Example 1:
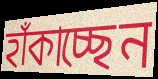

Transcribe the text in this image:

হাঁকাচ্ছেন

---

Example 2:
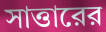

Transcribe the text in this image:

সাত্তারের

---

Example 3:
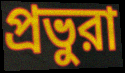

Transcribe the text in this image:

প্রভুরা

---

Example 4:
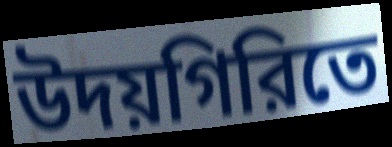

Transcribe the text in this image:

উদয়গিরিতে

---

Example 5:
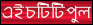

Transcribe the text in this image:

এইচটিটিপুল